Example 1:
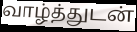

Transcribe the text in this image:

வாழ்த்துடன்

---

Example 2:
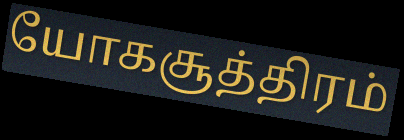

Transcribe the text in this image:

யோகசூத்திரம்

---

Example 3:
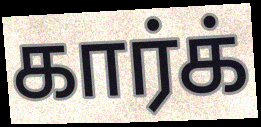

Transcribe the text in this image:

கார்க்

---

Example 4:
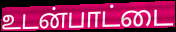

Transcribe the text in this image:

உடன்பாட்டை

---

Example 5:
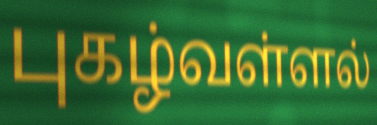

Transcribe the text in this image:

புகழ்வள்ளல்